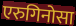
एरुगिनोसा